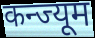
कन्ज्यूम